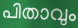
പിതാവും